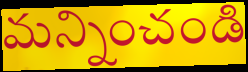
మన్నించండి